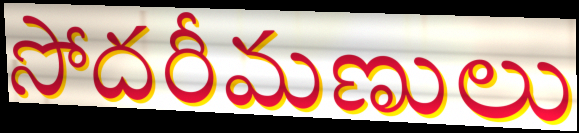
సోదరీమణులు